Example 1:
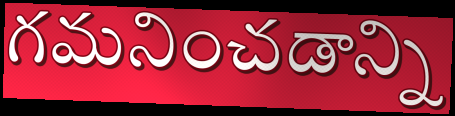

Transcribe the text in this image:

గమనించడాన్ని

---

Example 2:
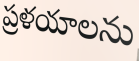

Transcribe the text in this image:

ప్రళయాలను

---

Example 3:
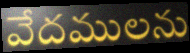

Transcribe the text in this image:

వేదములను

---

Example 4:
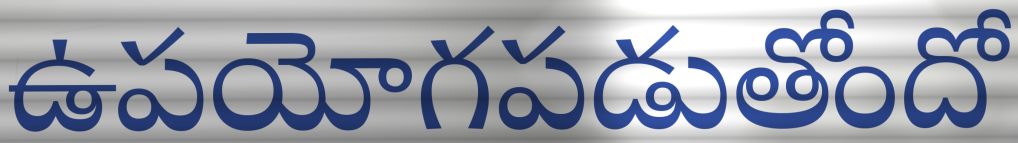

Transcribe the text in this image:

ఉపయోగపడుతోందో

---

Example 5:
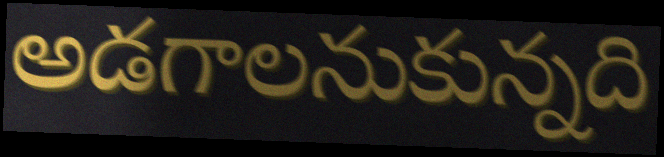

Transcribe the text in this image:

అడగాలనుకున్నది